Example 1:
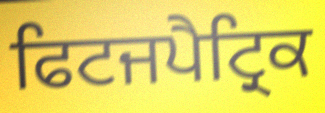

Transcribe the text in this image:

ਫਿਟਜਪੈਟ੍ਰਿਕ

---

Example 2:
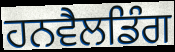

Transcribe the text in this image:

ਹਨਵੈਲਡਿੰਗ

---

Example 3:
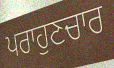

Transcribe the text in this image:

ਪਰਾਹੁਣਚਾਰ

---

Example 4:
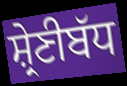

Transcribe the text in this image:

ਸ਼੍ਰੇਣੀਬੱਧ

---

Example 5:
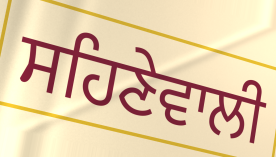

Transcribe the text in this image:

ਸਹਿਣੇਵਾਲੀ